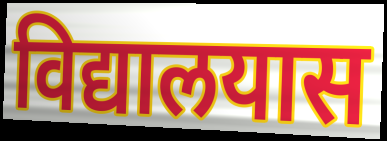
विद्यालयास